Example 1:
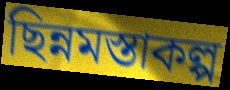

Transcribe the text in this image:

ছিন্নমস্তাকল্প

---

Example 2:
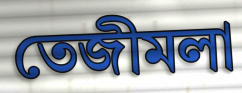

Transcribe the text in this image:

তেজীমলা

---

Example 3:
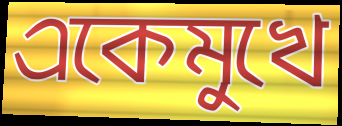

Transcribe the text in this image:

একেমুখে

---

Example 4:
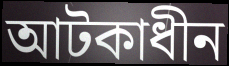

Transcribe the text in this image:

আটকাধীন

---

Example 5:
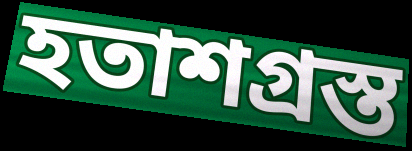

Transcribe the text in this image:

হতাশগ্ৰস্ত